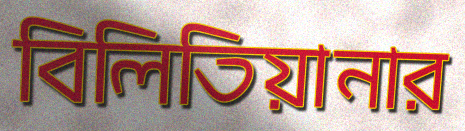
বিলিতিয়ানার